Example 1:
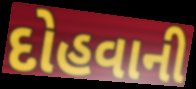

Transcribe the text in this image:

દોહવાની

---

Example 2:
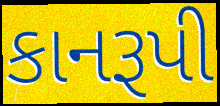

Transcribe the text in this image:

કાનરૂપી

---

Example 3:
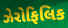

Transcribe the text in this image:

ઝેરોફિલિક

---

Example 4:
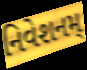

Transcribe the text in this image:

નિવેશનમ્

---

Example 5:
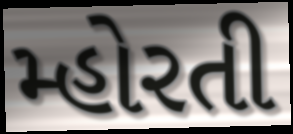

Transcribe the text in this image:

મ્હોરતી